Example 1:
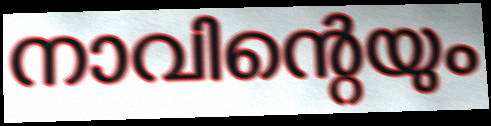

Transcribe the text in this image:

നാവിന്റെയും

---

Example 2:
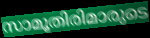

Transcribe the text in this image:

സാമൂതിരിമാരുടെ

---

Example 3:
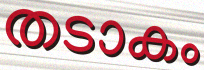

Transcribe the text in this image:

തടാകം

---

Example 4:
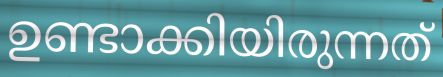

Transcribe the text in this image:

ഉണ്ടാക്കിയിരുന്നത്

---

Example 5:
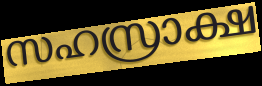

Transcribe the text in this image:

സഹസ്രാക്ഷ